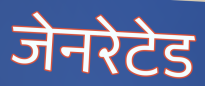
जेनरेटेड